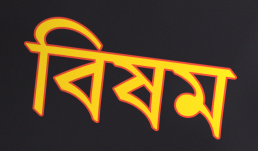
বিষম